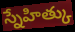
స్నేహిత్కు